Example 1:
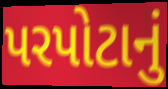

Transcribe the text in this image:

પરપોટાનું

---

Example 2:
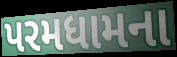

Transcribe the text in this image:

પરમધામના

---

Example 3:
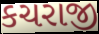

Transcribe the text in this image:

કચરાજી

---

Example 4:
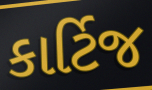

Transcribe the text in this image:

કાર્ટિજ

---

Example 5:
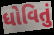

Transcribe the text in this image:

ધોવિતું